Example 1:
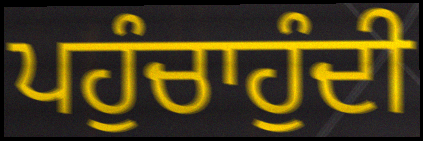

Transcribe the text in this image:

ਪਹੁੰਚਾਹੁੰਦੀ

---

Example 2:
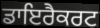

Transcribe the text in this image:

ਡਾਇਰੈਕਰਟ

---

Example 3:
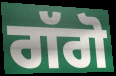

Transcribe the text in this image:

ਗੱਗੋ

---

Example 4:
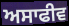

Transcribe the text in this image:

ਅਸਾਫੀਵ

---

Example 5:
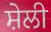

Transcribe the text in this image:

ਸ਼ੇਲੀ